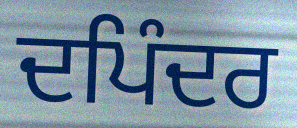
ਦਪਿੰਦਰ